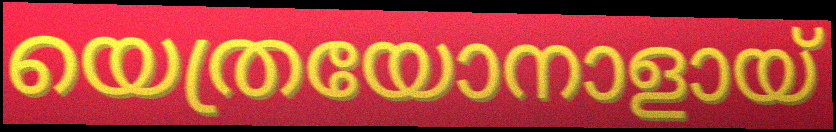
യെത്രയോനാളായ്